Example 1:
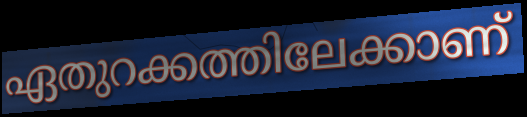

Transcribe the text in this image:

ഏതുറക്കത്തിലേക്കാണ്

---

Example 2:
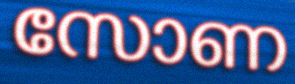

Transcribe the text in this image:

സോണ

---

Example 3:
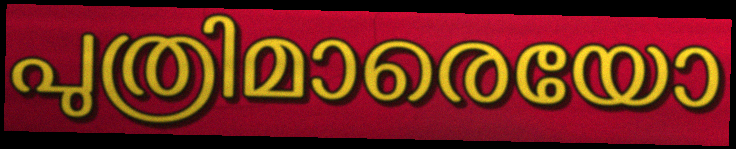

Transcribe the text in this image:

പുത്രിമാരെയോ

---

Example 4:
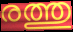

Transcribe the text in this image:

രത്തു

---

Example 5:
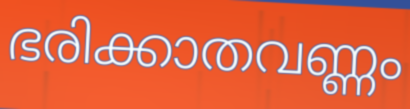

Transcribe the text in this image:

ഭരിക്കാതവണ്ണം